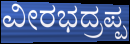
ವೀರಭದ್ರಪ್ಪ